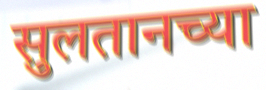
सुलतानच्या